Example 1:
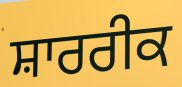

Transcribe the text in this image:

ਸ਼ਾਰਰੀਕ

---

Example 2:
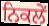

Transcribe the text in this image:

ਨਿਕਲੇਂ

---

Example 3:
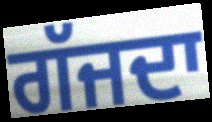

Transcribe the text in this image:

ਗੱਜਦਾ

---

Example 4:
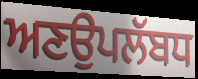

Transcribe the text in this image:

ਅਣਉਪਲੱਬਧ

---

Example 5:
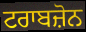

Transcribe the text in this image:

ਟਰਾਬਜ਼ੋਨ